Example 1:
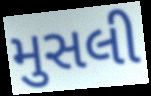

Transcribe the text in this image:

મુસલી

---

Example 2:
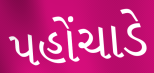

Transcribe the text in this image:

પહોંચાડે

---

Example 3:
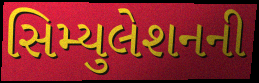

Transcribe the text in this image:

સિમ્યુલેશનની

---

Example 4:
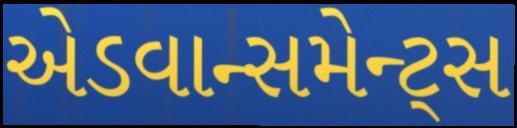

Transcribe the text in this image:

એડવાન્સમેન્ટ્સ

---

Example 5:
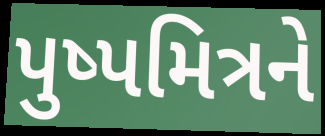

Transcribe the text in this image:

પુષ્પમિત્રને